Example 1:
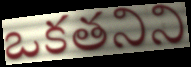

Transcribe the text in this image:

ఒకతనిని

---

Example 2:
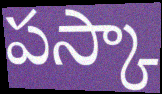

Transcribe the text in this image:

పస్కా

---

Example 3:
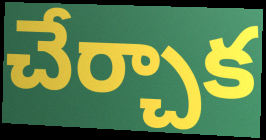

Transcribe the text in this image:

చేర్చాక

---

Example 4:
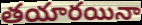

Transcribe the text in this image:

తయారయినా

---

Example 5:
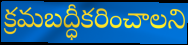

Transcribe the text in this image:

క్రమబద్ధీకరించాలని